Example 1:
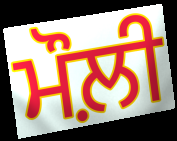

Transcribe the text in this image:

ਮੌਲ਼ੀ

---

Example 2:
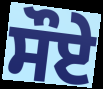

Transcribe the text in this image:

ਸੌਏ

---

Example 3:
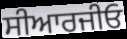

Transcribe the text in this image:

ਸੀਆਰਜੀਓ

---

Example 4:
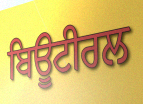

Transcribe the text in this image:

ਬਿਊਟੀਰਲ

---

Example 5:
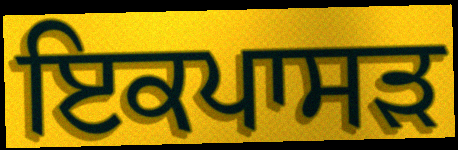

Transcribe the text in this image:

ਇਕਪਾਸੜ